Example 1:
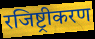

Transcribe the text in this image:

रजिष्ट्रीकरण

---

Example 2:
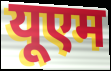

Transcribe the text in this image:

यूएम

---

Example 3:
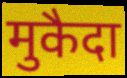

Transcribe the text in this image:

मुकैदा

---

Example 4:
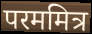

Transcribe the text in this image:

परममित्र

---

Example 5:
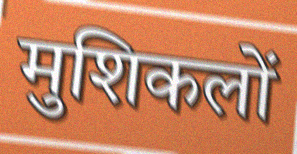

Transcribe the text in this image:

मुशिकलों